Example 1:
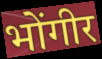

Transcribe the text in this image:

भोंगीर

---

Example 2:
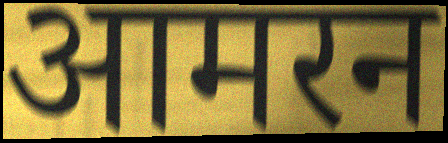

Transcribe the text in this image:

आमरन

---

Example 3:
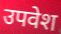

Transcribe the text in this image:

उपवेश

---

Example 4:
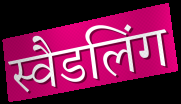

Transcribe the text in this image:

स्वैडलिंग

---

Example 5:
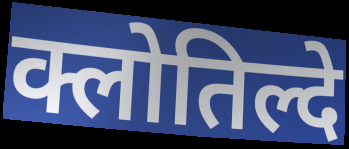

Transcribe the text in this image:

क्लोतिल्दे